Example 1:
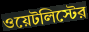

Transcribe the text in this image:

ওয়েটলিস্টের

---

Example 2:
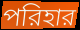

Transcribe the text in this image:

পরিহার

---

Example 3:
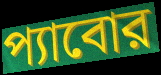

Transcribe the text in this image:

প্যাবোর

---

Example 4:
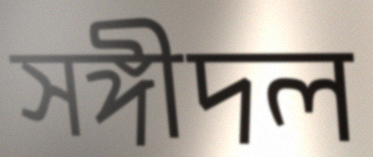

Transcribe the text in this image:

সঙ্গীদল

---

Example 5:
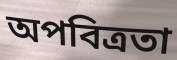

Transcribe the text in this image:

অপবিত্রতা